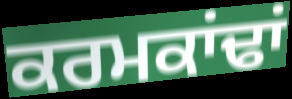
ਕਰਮਕਾਂਢਾਂ